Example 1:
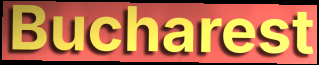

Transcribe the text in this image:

Bucharest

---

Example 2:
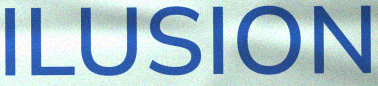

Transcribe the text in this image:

ILUSION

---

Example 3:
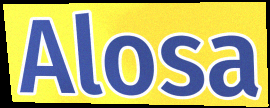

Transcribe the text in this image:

Alosa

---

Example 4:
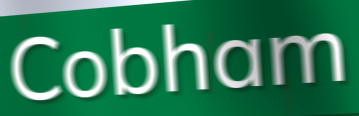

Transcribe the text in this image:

Cobham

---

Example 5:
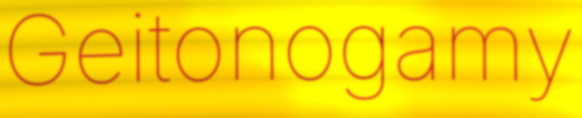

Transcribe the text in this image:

Geitonogamy